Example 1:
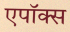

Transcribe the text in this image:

एपॉक्स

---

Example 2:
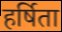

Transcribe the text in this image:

हर्षिता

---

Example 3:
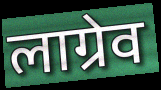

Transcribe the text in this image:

लाग्रेव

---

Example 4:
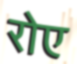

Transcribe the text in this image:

रोए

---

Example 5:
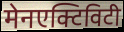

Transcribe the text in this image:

मेनएक्टिविटी